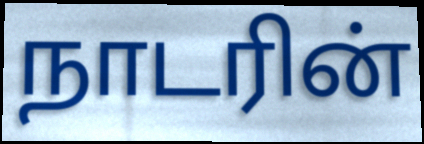
நாடரின்